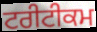
ਟਰੀਟੀਕਮ